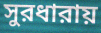
সুরধারায়